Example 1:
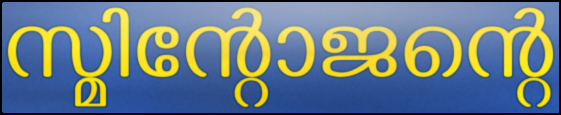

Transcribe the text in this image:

സ്മിന്റോജന്റെ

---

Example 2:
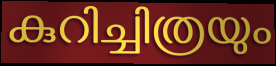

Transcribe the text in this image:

കുറിച്ചിത്രയും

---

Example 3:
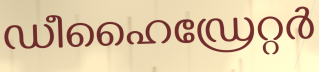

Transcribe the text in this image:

ഡീഹൈഡ്രേറ്റർ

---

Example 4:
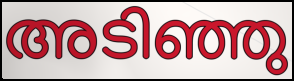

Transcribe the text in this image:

അടിഞ്ഞു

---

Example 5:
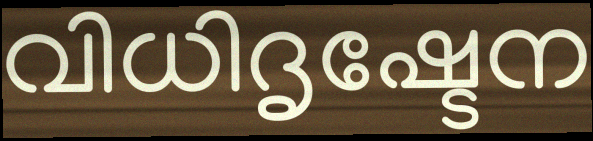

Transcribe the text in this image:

വിധിദൃഷ്ടേന